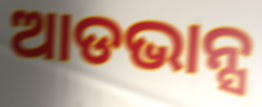
ଆଡଭାନ୍ସ